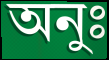
অনুঃ